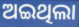
ଅଇଥିଲା